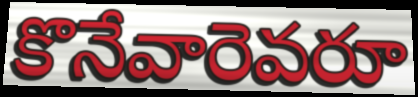
కొనేవారెవరూ